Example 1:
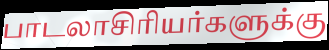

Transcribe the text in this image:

பாடலாசிரியர்களுக்கு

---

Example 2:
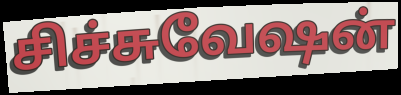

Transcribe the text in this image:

சிச்சுவேஷன்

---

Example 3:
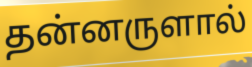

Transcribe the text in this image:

தன்னருளால்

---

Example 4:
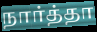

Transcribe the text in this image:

நார்த்தா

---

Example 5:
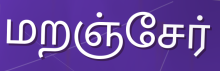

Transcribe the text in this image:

மறஞ்சேர்